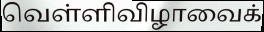
வெள்ளிவிழாவைக்